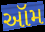
ઑમ